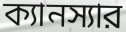
ক্যানস্যার